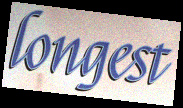
longest